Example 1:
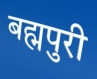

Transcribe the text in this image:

बह्मपुरी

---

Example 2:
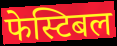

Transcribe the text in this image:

फेस्टिबल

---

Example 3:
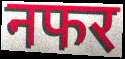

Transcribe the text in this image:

नफर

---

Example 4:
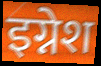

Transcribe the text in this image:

इग्नेश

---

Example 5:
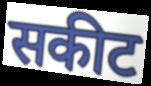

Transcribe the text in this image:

सकीट